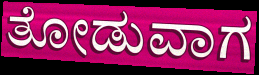
ತೋಡುವಾಗ